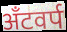
अँटवर्प